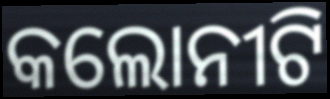
କଲୋନୀଟି